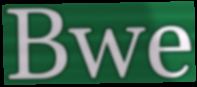
Bwe